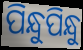
ପିନ୍ଧୁପିନ୍ଧୁ